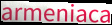
armeniaca